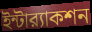
ইন্টার‍্যাকশন